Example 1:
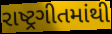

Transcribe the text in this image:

રાષ્ટ્રગીતમાંથી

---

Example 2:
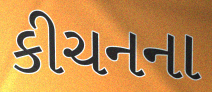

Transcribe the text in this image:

કીચનના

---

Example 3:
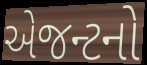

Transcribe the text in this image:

એજન્ટનો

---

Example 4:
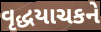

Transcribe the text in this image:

વૃદ્ધયાચકને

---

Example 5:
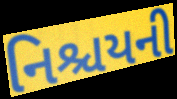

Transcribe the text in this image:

નિશ્ચયની